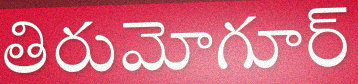
తిరుమోగూర్